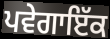
ਪਵੇਗਾਇੱਕ